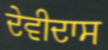
ਦੇਵੀਦਾਸ